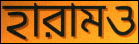
হারামও